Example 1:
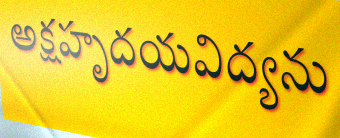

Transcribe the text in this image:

అక్షహృదయవిద్యను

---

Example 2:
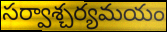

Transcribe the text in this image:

సర్వాశ్చర్యమయం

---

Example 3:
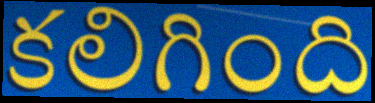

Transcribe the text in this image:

కలిగింది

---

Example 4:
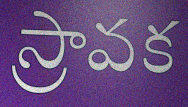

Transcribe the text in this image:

స్రావక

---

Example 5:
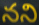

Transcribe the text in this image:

నని